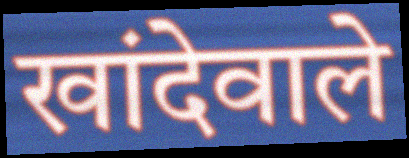
खांदेवाले